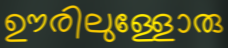
ഊരിലുള്ളോരു